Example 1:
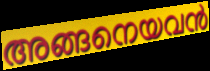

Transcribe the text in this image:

അങ്ങനെയവൻ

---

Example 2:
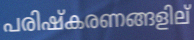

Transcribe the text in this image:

പരിഷ്കരണങ്ങളില്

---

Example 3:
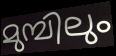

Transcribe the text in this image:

മുമ്പിലും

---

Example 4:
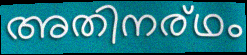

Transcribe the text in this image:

അതിനര്ഥം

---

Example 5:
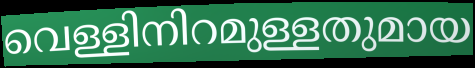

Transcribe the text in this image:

വെള്ളിനിറമുള്ളതുമായ